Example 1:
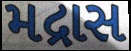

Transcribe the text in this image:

મદ્રાસ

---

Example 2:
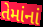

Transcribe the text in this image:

તેમાંનાં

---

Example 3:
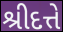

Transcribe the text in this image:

શ્રીદત્તે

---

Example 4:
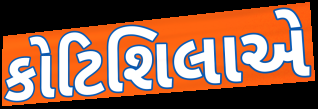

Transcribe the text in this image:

કોટિશિલાએ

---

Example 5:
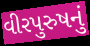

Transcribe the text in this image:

વીરપુરુષનું